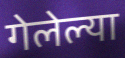
गेलेल्या